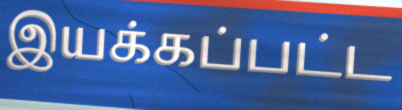
இயக்கப்பட்ட